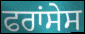
ਫਰਾਂਸੇਸ